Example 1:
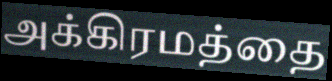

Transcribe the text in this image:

அக்கிரமத்தை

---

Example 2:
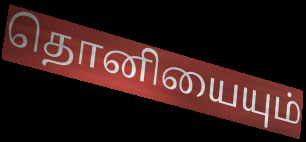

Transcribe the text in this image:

தொனியையும்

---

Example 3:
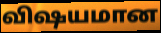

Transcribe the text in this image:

விஷயமான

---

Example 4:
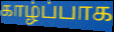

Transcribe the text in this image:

காழ்ப்பாக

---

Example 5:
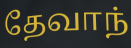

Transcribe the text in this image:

தேவாந்